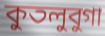
কুতলুবুগা